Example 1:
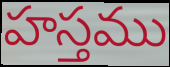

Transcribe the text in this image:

హస్తము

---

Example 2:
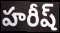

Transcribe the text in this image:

హరీష్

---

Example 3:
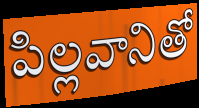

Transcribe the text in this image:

పిల్లవానితో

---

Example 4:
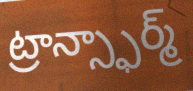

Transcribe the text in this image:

ట్రాన్స్ఫార్మ్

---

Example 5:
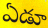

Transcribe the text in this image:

ఏడూ